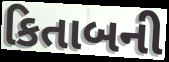
કિતાબની